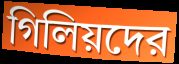
গিলিয়দের